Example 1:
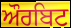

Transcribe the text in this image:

ਔਰਬਿਟ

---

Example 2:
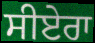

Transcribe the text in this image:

ਸੀਏਰਾ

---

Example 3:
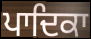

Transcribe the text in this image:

ਪਾਦਿਕਾ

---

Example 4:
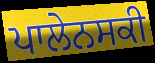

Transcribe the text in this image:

ਪਾਲੇਨਸਕੀ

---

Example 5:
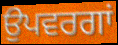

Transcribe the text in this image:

ਉਪਵਰਗਾਂ